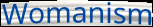
Womanism